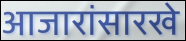
आजारांसारखे